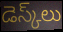
డెస్క్‌లు